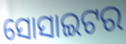
ସୋସାଇଟର